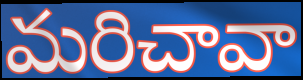
మరిచావా